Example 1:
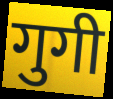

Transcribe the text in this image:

गुगी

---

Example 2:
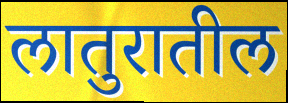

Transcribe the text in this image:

लातुरातील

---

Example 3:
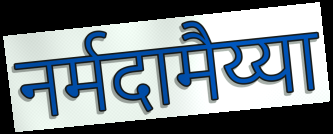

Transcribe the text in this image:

नर्मदामैय्या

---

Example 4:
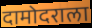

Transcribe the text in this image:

दामोदराला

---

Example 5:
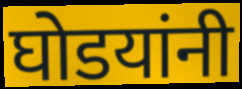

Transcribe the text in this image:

घोडयांनी